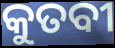
କୁତବୀ